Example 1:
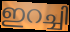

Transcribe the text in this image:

ഇറച്ചി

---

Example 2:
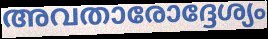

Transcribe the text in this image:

അവതാരോദ്ദേശ്യം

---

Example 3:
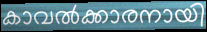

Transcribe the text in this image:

കാവൽക്കാരനായി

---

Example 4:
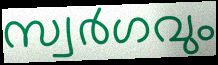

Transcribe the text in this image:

സ്വർഗവും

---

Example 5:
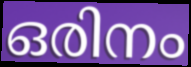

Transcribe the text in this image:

ഒരിനം